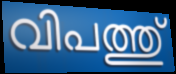
വിപത്തു്